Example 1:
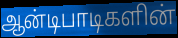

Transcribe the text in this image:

ஆன்டிபாடிகளின்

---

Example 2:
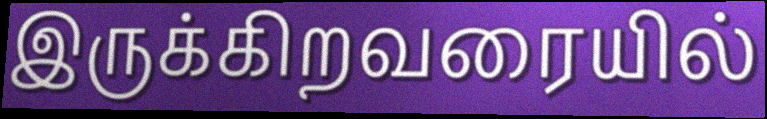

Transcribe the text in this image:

இருக்கிறவரையில்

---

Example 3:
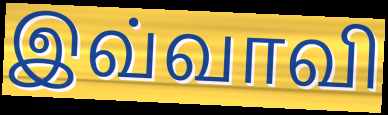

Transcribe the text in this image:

இவ்வாவி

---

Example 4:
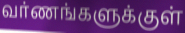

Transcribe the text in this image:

வர்ணங்களுக்குள்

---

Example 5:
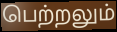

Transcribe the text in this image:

பெற்றலும்